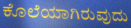
ಕೊಲೆಯಾಗಿರುವುದು